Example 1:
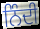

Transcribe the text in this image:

ਨਿੰਦੀ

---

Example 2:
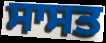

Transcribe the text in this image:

ਸਾਸਤ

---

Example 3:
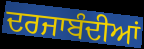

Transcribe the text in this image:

ਦਰਜਾਬੰਦੀਆਂ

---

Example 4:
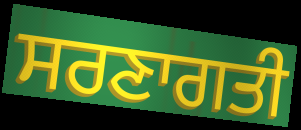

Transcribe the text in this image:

ਸਰਣਾਗਤੀ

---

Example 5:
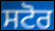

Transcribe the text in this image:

ਸਟੋਰ